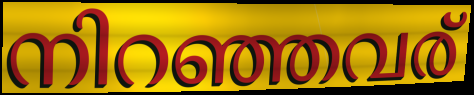
നിറഞ്ഞവര്